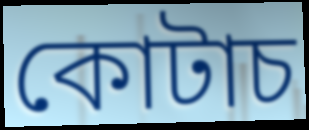
কোটাচ